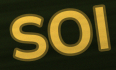
SOI